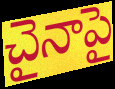
చైనాపై